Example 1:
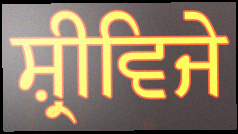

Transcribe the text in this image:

ਸ਼੍ਰੀਵਿਜੇ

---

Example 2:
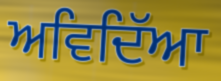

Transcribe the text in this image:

ਅਵਿਦਿੱਆ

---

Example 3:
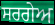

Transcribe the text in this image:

ਸਰਗੇਅ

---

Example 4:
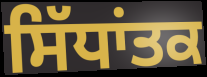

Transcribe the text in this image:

ਸਿੱਧਾਂਤਕ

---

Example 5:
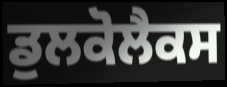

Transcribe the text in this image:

ਡੁਲਕੋਲੈਕਸ